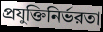
প্রযুক্তিনির্ভরতা